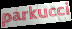
parkucci